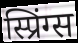
स्प्रिंग्स